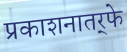
प्रकाशनातर्फे